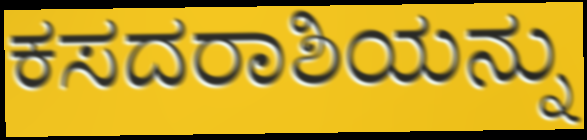
ಕಸದರಾಶಿಯನ್ನು